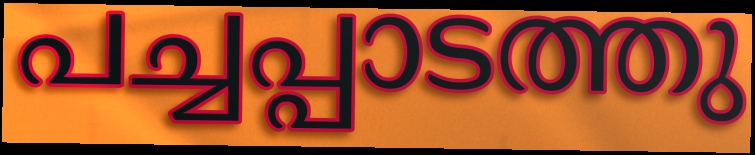
പച്ചപ്പാടത്തു